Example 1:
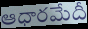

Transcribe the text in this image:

ఆధారమేదీ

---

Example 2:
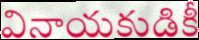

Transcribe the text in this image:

వినాయకుడికీ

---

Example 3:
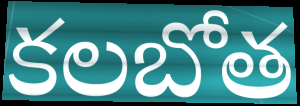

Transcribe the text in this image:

కలబోత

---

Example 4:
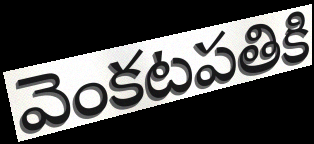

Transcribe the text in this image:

వెంకటపతికి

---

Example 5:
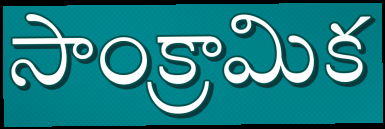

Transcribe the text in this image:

సాంక్రామిక